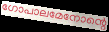
ഗോപാലമേനോന്റെ